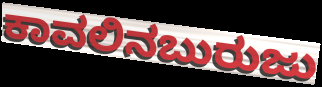
ಕಾವಲಿನಬುರುಜು